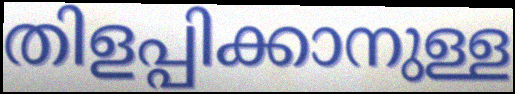
തിളപ്പിക്കാനുള്ള